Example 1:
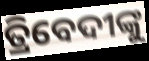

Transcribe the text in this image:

ତ୍ରିବେଦୀଙ୍କୁ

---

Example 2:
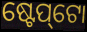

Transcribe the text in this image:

ଷ୍ଟେପ୍‌ଟୋ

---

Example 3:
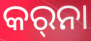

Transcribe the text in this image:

କର୍‍ନା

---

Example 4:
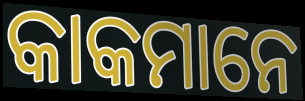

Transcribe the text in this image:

କାକମାନେ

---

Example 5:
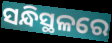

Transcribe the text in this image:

ସନ୍ଧିସ୍ଥଳରେ